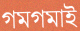
গমগমাই